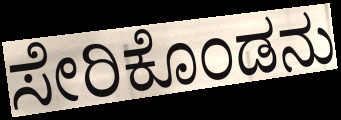
ಸೇರಿಕೊಂಡನು